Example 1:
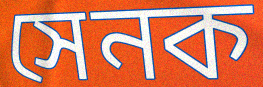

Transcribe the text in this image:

সেনক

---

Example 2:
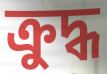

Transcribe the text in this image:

ক্ৰুদ্ধ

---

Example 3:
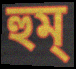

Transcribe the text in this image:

হুম্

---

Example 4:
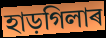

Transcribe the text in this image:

হাড়গিলাৰ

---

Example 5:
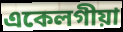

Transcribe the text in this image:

একেলগীয়া